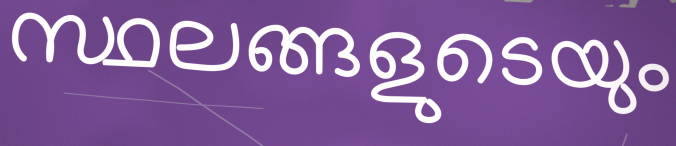
സ്ഥലങ്ങളുടെയും